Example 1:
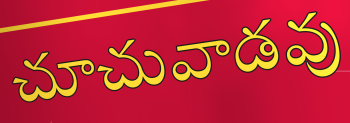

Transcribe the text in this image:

చూచువాడవు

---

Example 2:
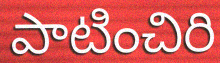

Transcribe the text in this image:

పాటించిరి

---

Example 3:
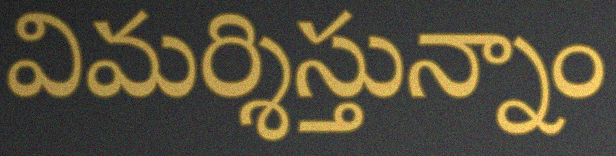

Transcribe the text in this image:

విమర్శిస్తున్నాం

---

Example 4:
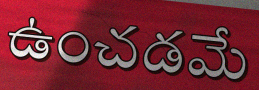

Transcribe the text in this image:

ఉంచడమే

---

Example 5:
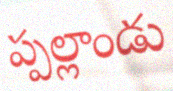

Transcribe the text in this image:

ప్పల్లాండు